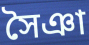
সৈঞা